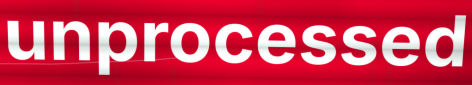
unprocessed